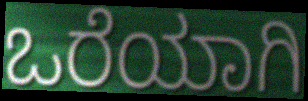
ಒರೆಯಾಗಿ